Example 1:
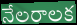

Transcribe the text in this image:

నేలరాలక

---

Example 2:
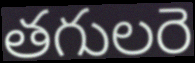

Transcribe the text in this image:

తగులరె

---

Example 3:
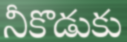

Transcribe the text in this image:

నీకొడుకు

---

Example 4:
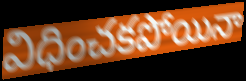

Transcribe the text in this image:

విధించకపోయినా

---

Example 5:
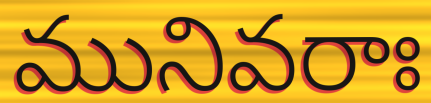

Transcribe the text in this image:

మునివరాః